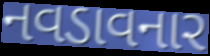
નવડાવનાર